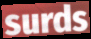
surds